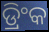
ଡ୍ରିଂକ